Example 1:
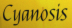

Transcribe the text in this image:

Cyanosis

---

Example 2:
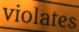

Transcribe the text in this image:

violates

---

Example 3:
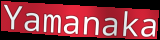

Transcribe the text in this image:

Yamanaka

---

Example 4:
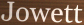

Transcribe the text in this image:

Jowett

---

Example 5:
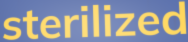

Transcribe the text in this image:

sterilized